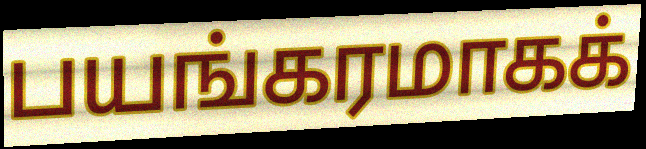
பயங்கரமாகக்